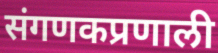
संगणकप्रणाली